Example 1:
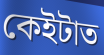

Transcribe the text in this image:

কেইটাত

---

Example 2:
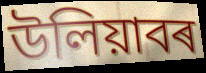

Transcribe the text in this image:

উলিয়াবৰ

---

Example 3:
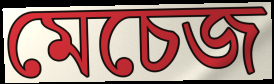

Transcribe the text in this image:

মেচেজ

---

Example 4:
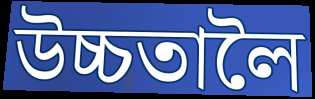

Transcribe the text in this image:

উচ্চতালৈ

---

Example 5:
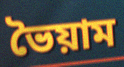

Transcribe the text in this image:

ভৈয়াম